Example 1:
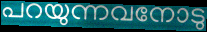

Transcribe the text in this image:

പറയുന്നവനോടു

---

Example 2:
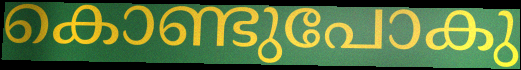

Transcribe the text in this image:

കൊണ്ടുപോകു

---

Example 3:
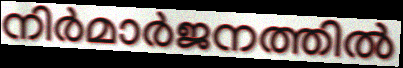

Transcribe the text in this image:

നിർമാർജനത്തിൽ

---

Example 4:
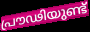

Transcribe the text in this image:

പ്രൗഢിയുണ്ട്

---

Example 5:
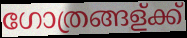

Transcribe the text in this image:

ഗോത്രങ്ങള്ക്ക്